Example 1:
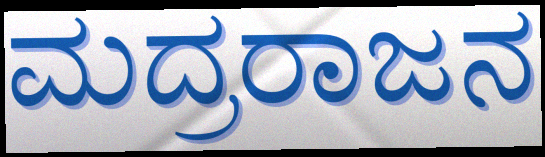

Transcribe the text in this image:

ಮದ್ರರಾಜನ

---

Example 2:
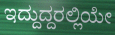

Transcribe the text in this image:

ಇದ್ದುದ್ದರಲ್ಲಿಯೇ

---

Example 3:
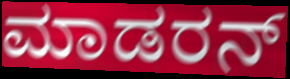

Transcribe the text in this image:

ಮಾಡರನ್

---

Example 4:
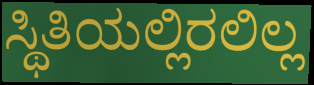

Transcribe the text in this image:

ಸ್ಥಿತಿಯಲ್ಲಿರಲಿಲ್ಲ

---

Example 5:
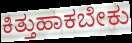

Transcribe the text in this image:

ಕಿತ್ತುಹಾಕಬೇಕು